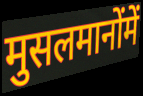
मुसलमानोंमें